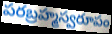
పరబ్రహ్మస్వరూపం